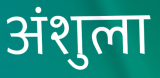
अंशुला